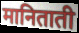
मानिताती